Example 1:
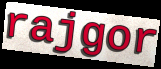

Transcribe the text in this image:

rajgor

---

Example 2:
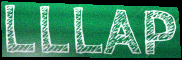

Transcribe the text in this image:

LLLAP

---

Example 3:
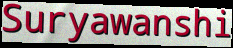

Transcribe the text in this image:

Suryawanshi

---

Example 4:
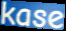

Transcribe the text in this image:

kase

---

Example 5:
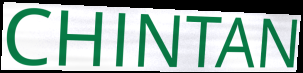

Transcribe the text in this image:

CHINTAN